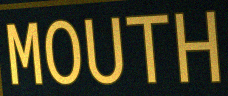
MOUTH